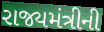
રાજ્યમંત્રીની